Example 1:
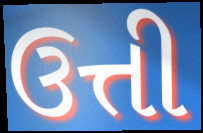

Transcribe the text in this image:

ઉત્તી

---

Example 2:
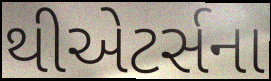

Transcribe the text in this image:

થીએટર્સના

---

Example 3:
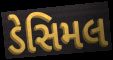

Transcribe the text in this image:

ડેસિમલ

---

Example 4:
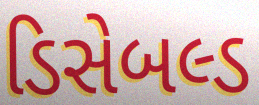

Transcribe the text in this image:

ડિસેબલ્ડ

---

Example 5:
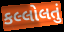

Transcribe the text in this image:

કલ્લોલતું